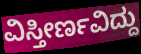
ವಿಸ್ತೀರ್ಣವಿದ್ದು